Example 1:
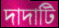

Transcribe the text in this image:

দাদাটি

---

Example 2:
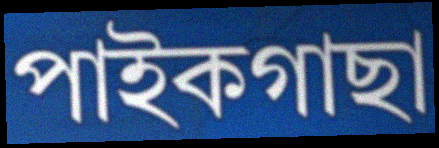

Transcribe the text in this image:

পাইকগাছা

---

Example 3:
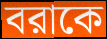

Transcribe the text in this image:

বরাকে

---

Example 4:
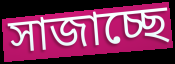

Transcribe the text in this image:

সাজাচ্ছে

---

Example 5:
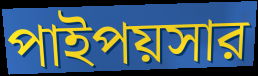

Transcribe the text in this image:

পাইপয়সার